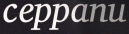
ceppanu